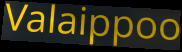
Valaippoo